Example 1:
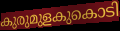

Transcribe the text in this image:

കുരുമുളകുകൊടി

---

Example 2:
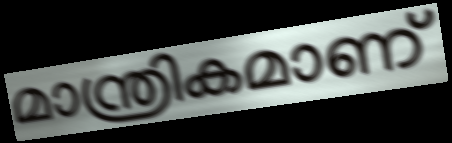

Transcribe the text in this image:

മാന്ത്രികമാണ്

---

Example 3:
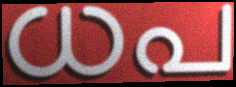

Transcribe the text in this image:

ധപ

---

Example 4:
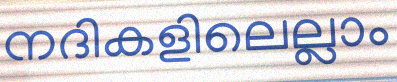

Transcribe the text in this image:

നദികളിലെല്ലാം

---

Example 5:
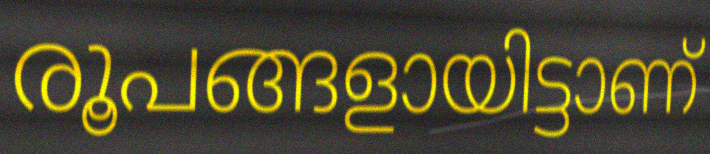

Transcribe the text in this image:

രൂപങ്ങളായിട്ടാണ്